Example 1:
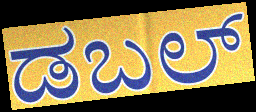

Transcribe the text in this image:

ಡಬಲ್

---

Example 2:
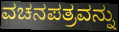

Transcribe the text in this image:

ವಚನಪತ್ರವನ್ನು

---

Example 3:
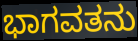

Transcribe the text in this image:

ಭಾಗವತನು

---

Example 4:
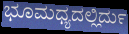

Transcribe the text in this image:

ಭೂಮಧ್ಯದಲ್ಲಿರ್ದು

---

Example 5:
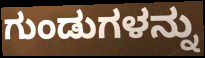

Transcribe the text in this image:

ಗುಂಡುಗಳನ್ನು